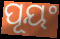
ପୂୟଂ